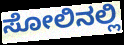
ಸೋಲಿನಲ್ಲಿ